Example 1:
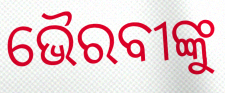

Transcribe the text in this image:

ଭୈରବୀଙ୍କୁ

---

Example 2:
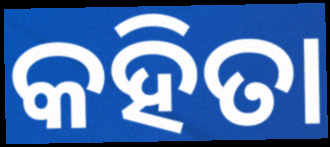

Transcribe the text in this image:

କହିତା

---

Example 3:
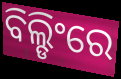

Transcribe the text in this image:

ବିଲ୍ଡିଂରେ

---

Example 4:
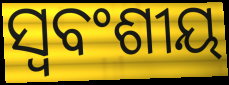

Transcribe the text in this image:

ସ୍ଵବଂଶୀୟ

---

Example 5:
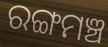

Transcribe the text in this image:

ରଙ୍ଗମଞ୍ଚ